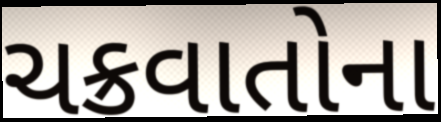
ચક્રવાતોના